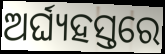
ଅର୍ଘ୍ୟହସ୍ତରେ